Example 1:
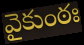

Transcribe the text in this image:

వైకుంఠః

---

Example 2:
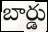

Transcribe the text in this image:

బార్డు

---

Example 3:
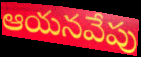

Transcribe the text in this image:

ఆయనవేపు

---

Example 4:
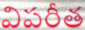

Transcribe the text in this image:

విపరీత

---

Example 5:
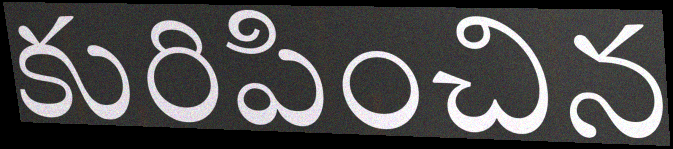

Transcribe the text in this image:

కురిపించిన